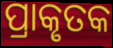
ପ୍ରାକୃତକ